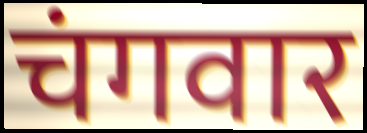
चंगवार